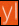
yl